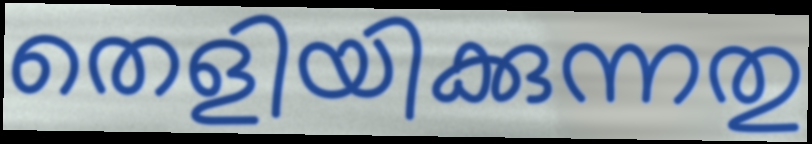
തെളിയിക്കുന്നതു